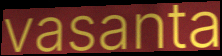
vasanta